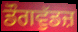
ਡੌਗਵੁੱਡਜ਼